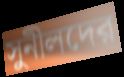
সুনীলদের